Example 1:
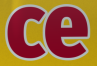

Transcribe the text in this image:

ce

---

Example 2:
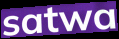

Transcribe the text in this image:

satwa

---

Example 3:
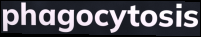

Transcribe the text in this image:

phagocytosis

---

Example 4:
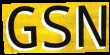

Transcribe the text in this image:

GSN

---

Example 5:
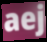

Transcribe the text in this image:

aej